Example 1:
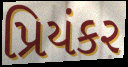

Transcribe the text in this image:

પ્રિયંકર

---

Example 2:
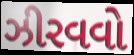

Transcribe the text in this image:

ઝીરવવો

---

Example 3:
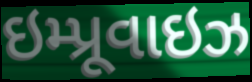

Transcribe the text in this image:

ઇમ્પ્રૂવાઇઝ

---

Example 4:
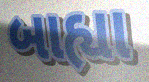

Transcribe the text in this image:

બાહ્યા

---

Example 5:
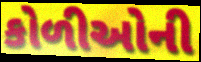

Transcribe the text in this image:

કોળીઓની